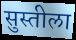
सुस्तीला